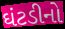
ઘંટડીનો